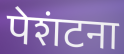
पेशंटना